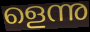
ളെന്നു